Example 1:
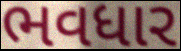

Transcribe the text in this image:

ભવધાર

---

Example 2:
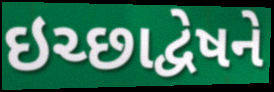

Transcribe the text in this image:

ઇચ્છાદ્વેષને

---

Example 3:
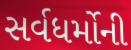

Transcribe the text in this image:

સર્વધર્મોની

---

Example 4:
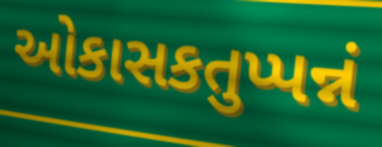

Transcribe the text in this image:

ઓકાસકતુપ્પન્નં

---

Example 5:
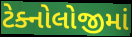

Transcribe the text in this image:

ટેક્નોલોજીમાં